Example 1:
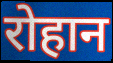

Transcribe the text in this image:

रोहान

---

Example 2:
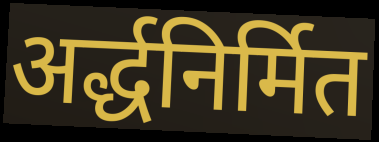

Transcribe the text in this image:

अर्द्धनिर्मित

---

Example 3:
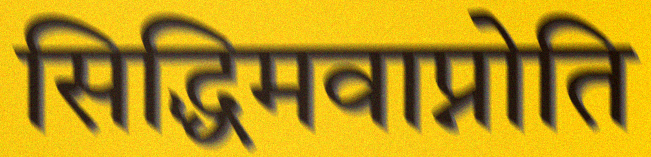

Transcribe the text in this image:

सिद्धिमवाप्नोति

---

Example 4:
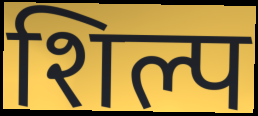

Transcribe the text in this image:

शिल्प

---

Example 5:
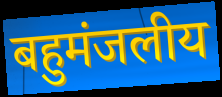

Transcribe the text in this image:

बहुमंजलीय